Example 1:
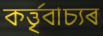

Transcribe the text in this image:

কৰ্ত্তৃবাচ্যৰ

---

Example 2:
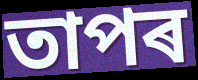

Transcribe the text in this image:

তাপৰ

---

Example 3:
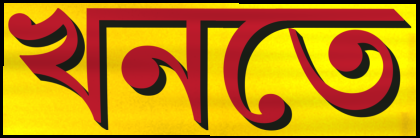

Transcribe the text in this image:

খনতে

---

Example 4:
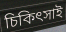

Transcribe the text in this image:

চিকিৎসাই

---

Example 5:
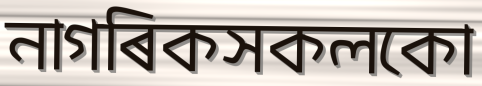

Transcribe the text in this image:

নাগৰিকসকলকো